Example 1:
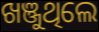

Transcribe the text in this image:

ଖଞ୍ଜୁଥିଲେ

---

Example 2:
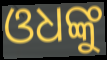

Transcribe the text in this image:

ଓଧଙ୍କୁ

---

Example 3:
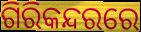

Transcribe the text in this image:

ଗିରିକନ୍ଦରରେ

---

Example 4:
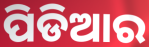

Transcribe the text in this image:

ପିଡିଆର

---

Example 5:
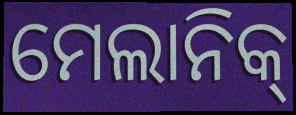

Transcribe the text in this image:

ମେଲାନିକ୍